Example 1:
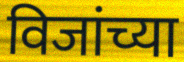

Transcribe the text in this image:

विजांच्या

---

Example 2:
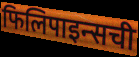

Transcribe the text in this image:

फिलिपाइन्सची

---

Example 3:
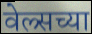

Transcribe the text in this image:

वेल्सच्या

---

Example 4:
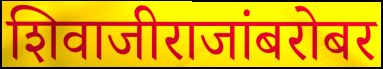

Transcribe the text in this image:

शिवाजीराजांबरोबर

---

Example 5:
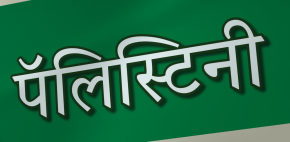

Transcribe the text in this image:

पॅलिस्टिनी